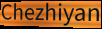
Chezhiyan